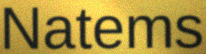
Natems